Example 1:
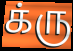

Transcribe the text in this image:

க்ரு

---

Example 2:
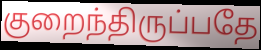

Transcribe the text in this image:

குறைந்திருப்பதே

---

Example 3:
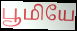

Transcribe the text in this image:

பூமியே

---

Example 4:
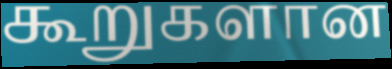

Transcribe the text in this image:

கூறுகளான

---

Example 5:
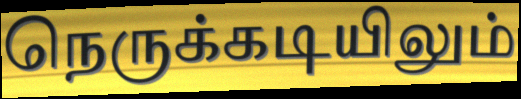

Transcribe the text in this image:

நெருக்கடியிலும்